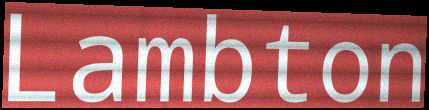
Lambton